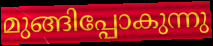
മുങ്ങിപ്പോകുന്നു